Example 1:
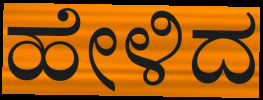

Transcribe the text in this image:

ಹೇಳಿದ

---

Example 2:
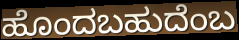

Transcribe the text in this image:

ಹೊಂದಬಹುದೆಂಬ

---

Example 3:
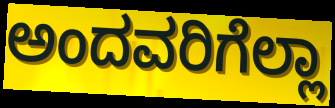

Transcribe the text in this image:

ಅಂದವರಿಗೆಲ್ಲಾ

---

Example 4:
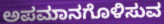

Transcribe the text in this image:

ಅಪಮಾನಗೊಳಿಸುವ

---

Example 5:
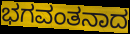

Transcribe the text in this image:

ಭಗವಂತನಾದ